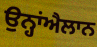
ਉਨ੍ਹਾਂਐਲਾਨ